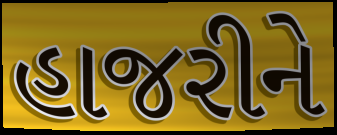
હાજરીને